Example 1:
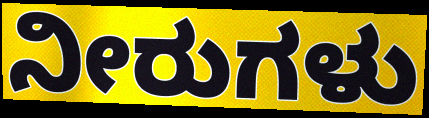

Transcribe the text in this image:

ನೀರುಗಳು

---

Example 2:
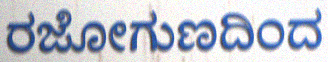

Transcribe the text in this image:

ರಜೋಗುಣದಿಂದ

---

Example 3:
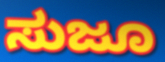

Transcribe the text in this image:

ಸುಜೂ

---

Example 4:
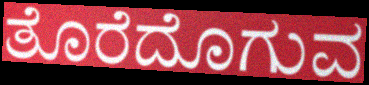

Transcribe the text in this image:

ತೊರೆದೊಗುವ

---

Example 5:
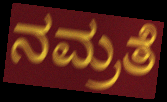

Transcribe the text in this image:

ನಮ್ರತೆ